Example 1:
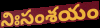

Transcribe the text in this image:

నిఃసంశయం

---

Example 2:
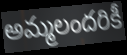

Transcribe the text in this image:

అమ్మలందరికీ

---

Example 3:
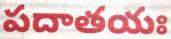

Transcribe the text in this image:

పదాతయః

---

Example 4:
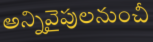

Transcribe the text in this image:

అన్నివైపులనుంచీ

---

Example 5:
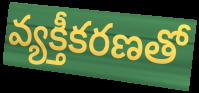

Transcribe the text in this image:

వ్యక్తీకరణతో